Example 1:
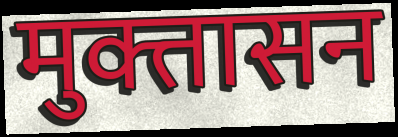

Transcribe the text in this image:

मुक्तासन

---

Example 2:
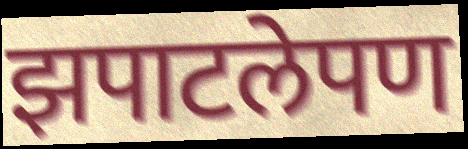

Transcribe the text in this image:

झपाटलेपण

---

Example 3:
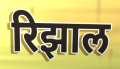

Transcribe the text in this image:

रिझाल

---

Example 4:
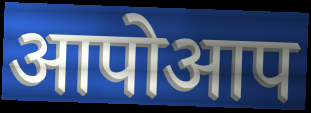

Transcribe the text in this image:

आपोआप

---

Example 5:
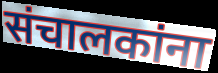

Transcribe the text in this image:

संचालकांना